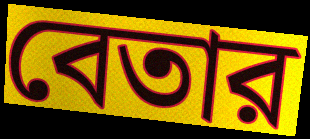
বেতার